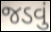
જડવું